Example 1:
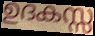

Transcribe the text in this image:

ഉദകസ്സ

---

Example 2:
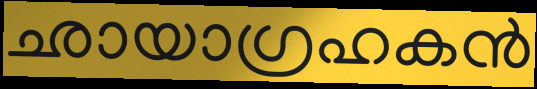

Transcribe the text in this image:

ഛായാഗ്രഹകൻ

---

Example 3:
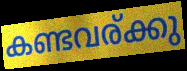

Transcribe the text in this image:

കണ്ടവര്ക്കു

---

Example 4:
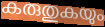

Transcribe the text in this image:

കരുതുകയും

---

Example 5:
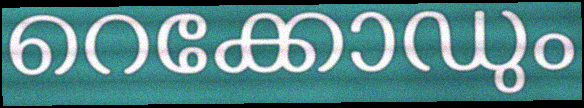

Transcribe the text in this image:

റെക്കോഡും